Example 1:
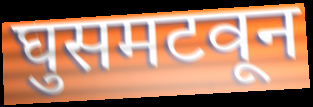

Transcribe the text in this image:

घुसमटवून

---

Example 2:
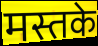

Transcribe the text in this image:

मस्तके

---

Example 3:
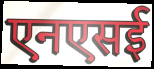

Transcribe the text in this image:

एनएसई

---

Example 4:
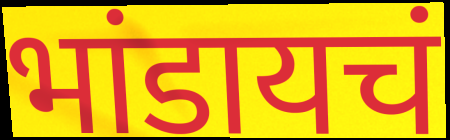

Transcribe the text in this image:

भांडायचं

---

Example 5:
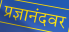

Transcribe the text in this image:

प्रज्ञानंदवर